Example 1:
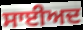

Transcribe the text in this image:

ਸਾਈਅਦ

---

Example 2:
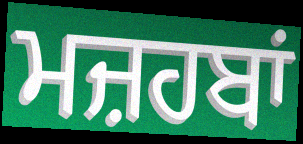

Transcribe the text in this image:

ਮਜ਼ਹਬਾਂ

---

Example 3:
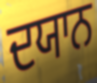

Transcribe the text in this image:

ਦਯਾਨ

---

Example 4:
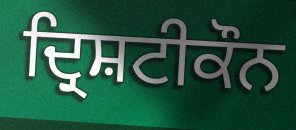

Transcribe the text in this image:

ਦ੍ਰਿਸ਼ਟੀਕੌਨ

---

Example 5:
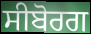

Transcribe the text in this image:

ਸੀਬੋਰਗ